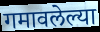
गमावलेल्या